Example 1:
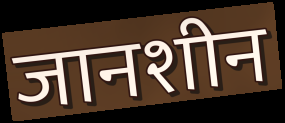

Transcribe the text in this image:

जानशीन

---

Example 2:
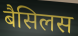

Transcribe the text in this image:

बैसिलस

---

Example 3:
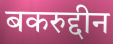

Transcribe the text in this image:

बकरुद्दीन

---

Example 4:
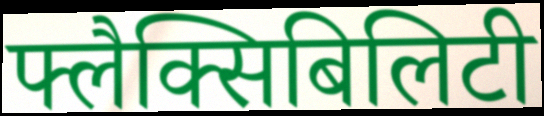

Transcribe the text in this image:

फ्लैक्सिबिलिटी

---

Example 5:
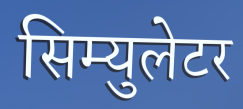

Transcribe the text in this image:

सिम्युलेटर